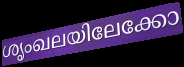
ശൃംഖലയിലേക്കോ